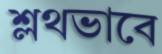
শ্লথভাবে